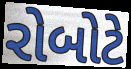
રોબોટે